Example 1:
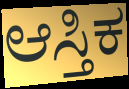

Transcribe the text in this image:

ಆಸ್ತಿಕ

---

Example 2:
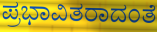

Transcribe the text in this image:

ಪ್ರಭಾವಿತರಾದಂತೆ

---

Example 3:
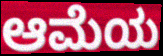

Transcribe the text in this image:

ಆಮೆಯ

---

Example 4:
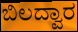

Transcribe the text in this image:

ಬಿಲದ್ವಾರ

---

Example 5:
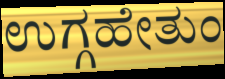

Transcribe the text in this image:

ಉಗ್ಗಹೇತುಂ